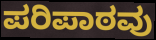
ಪರಿಪಾಠವು